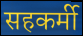
सहकर्मी